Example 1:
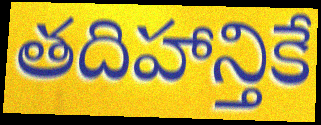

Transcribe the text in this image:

తదిహాన్తికే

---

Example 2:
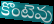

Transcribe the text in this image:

కొంటెవు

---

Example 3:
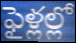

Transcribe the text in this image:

ఫైళ్లల్లో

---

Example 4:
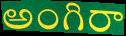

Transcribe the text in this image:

అంగిరా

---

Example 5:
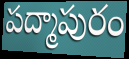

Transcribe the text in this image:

పద్మాపురం